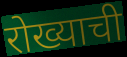
रोख्याची